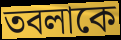
তবলাকে